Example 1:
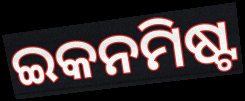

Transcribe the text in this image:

ଇକନମିଷ୍ଟ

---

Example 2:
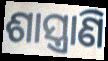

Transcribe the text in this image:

ଶାସ୍ତ୍ରାଣି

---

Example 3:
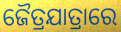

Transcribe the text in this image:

ଜୈତ୍ରଯାତ୍ରାରେ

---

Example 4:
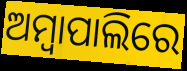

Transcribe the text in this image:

ଅମ୍ବାପାଲିରେ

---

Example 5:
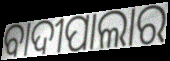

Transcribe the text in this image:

ବାଦୀପାଲାର